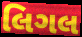
લિગલ